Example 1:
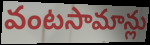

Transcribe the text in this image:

వంటసామాన్లు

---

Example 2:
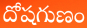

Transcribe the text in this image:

దోషగుణం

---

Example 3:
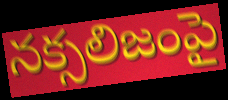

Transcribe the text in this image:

నక్సలిజంపై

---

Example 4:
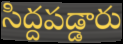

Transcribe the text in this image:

సిద్దపడ్డారు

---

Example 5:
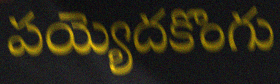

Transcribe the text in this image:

పయ్యెదకొంగు